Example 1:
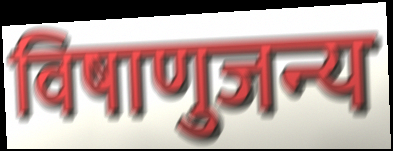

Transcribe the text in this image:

विषाणुजन्य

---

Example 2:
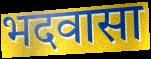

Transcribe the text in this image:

भदवासा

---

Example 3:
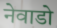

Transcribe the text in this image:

नेवाडो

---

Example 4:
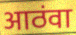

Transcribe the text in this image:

आठंवा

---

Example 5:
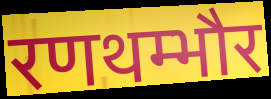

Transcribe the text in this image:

रणथम्भौर